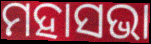
ମହାସଭା